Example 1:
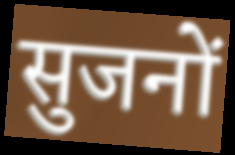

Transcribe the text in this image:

सुजनों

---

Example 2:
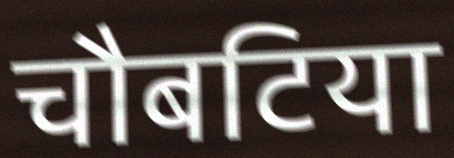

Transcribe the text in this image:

चौबटिया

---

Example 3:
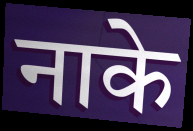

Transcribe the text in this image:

नाके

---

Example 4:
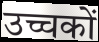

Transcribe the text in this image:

उच्चकों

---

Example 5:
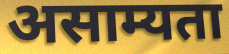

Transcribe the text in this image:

असाम्यता